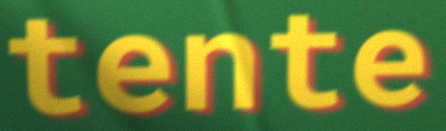
tente